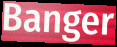
Banger